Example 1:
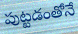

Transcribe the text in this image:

పుట్టడంతోనే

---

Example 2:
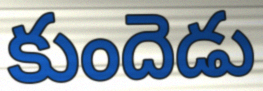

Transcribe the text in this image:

కుందెడు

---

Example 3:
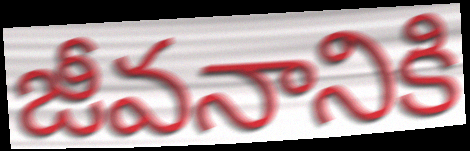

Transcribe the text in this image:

జీవనానికి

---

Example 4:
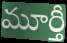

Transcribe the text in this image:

మూర్తీ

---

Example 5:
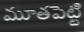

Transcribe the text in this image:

మూతపెట్టి